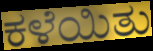
ಕಳೆಯಿತು